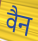
वैन